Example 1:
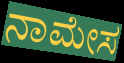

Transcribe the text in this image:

ನಾಮೇಸ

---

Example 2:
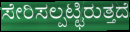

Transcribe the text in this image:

ಸೇರಿಸಲ್ಪಟ್ಟಿರುತ್ತದೆ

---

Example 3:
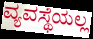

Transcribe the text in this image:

ವ್ಯವಸ್ಥೆಯಲ್ಲ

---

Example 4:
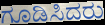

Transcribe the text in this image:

ಗೂಡಿಸಿದರು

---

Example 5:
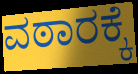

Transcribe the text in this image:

ವಠಾರಕ್ಕೆ